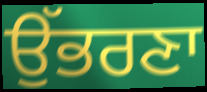
ਉੱਭਰਣਾ